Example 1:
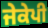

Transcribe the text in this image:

ਜੇਕੇਪੀ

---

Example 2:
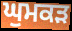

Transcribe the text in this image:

ਘੁਮਕੜ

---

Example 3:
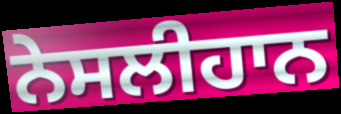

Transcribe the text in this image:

ਨੇਸਲੀਹਾਨ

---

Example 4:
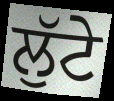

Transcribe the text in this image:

ਲੁੱਟੇ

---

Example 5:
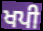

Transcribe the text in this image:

ਖਪੀ